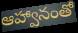
ఆహ్వానంతో